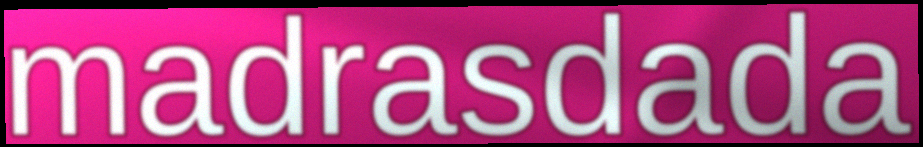
madrasdada